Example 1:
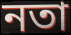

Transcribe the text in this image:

নতা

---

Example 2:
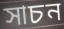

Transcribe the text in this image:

সাচন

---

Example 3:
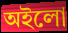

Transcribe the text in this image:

অইলো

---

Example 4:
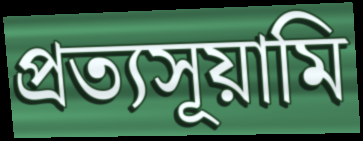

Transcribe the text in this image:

প্রত্যসূয়ামি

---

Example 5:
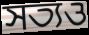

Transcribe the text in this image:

সত্যও